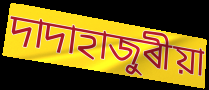
দাদাহাজুৰীয়া